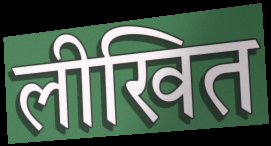
लीखित